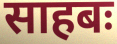
साहबः